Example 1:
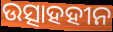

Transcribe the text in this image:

ଉତ୍ସାହହୀନ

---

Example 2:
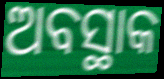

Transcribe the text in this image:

ଅବସ୍ଥାକ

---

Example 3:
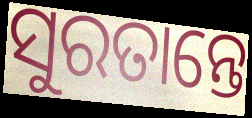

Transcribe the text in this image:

ସୁରତାନ୍ତେ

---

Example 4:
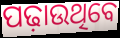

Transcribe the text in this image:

ପଢ଼ାଉଥିବେ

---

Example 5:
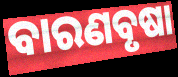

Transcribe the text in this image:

ବାରଣବୃଷା